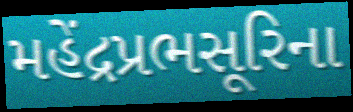
મહેંદ્રપ્રભસૂરિના